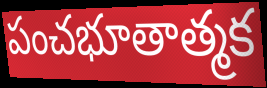
పంచభూతాత్మక